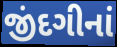
જીંદગીનાં